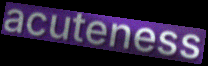
acuteness